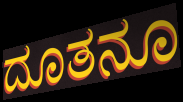
ದೂತನೂ